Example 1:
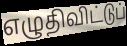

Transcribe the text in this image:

எழுதிவிட்டுப்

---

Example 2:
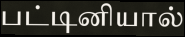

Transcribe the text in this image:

பட்டினியால்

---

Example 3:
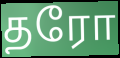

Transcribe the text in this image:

தரோ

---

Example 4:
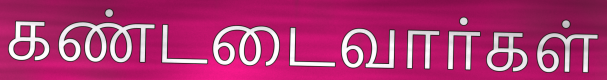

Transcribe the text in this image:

கண்டடைவார்கள்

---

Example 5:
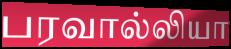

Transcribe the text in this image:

பரவால்லியா